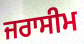
ਜਰਾਸੀਮ